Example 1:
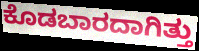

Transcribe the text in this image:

ಕೊಡಬಾರದಾಗಿತ್ತು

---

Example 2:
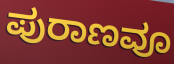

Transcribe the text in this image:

ಪುರಾಣವೂ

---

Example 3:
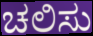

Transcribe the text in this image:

ಚಲಿಸು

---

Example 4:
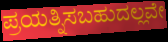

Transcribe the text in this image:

ಪ್ರಯತ್ನಿಸಬಹುದಲ್ಲವೇ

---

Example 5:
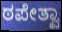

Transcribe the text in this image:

ಠಪೇತ್ವಾ